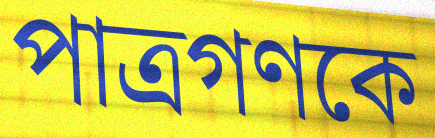
পাত্রগণকে